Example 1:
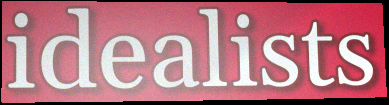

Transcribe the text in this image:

idealists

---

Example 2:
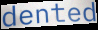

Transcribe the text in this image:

dented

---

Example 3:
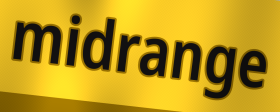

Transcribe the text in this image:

midrange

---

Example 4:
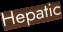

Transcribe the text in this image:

Hepatic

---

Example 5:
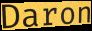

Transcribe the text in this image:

Daron